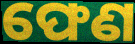
ଫେଣ